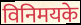
विनिमयके